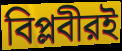
বিপ্লবীরই